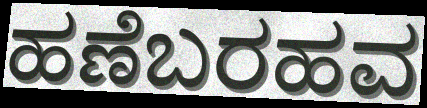
ಹಣೆಬರಹವ